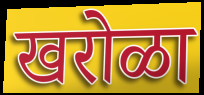
खरोळा